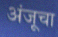
अंजूचा